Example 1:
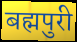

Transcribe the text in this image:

बह्मपुरी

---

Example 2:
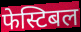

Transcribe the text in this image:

फेस्टिबल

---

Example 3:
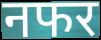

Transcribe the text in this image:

नफर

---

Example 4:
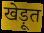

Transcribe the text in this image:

खेड़ूत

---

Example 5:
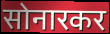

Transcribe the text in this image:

सोनारकर